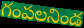
గంపలనిండ